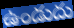
ఉండుదు